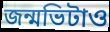
জন্মভিটাও